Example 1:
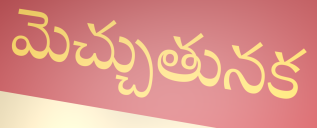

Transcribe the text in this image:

మెచ్చుతునక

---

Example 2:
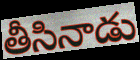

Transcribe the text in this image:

తీసినాడు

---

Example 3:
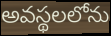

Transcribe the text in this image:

అవస్థలలోను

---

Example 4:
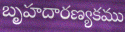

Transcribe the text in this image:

బృహదారణ్యకము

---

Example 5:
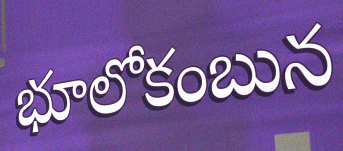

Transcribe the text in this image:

భూలోకంబున